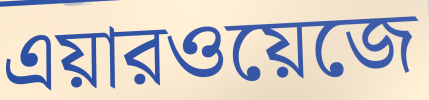
এয়ারওয়েজে